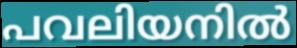
പവലിയനിൽ